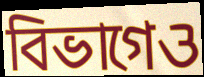
বিভাগেও